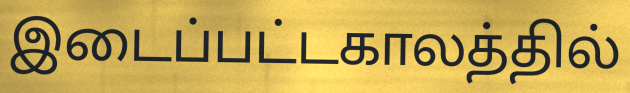
இடைப்பட்டகாலத்தில்